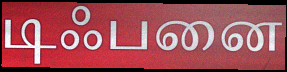
டிஃபனை